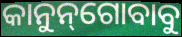
କାନୁନ୍‌ଗୋବାବୁ